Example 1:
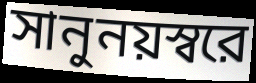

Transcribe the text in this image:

সানুনয়স্বরে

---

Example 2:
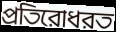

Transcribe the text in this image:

প্রতিরোধরত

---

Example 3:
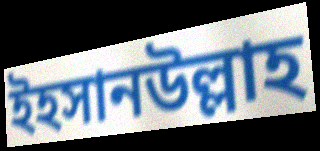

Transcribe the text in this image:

ইহসানউল্লাহ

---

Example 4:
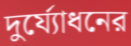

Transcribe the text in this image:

দুর্য্যোধনের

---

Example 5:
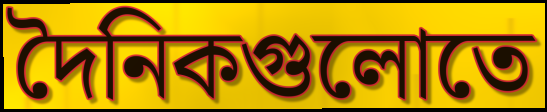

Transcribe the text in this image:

দৈনিকগুলোতে